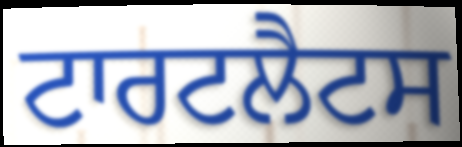
ਟਾਰਟਲੈਟਸ